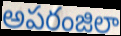
అపరంజిలా